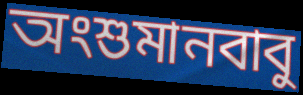
অংশুমানবাবু